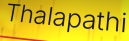
Thalapathi